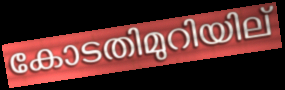
കോടതിമുറിയില്